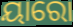
ୟାରୋ